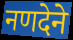
नणदेने